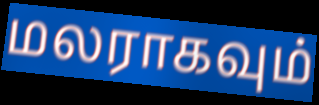
மலராகவும்